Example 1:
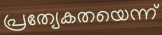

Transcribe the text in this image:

പ്രത്യേകതയെന്ന്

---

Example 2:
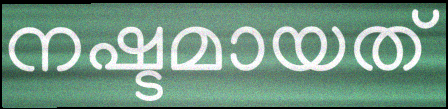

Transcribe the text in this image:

നഷ്ടമായത്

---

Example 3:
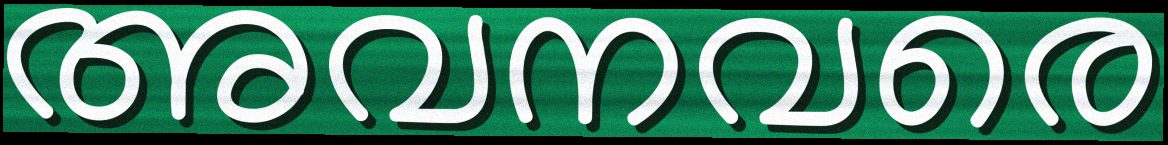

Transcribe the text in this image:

അവനവരെ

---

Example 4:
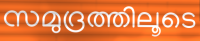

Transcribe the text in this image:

സമുദ്രത്തിലൂടെ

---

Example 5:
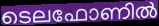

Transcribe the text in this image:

ടെലഫോണിൽ